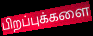
பிறப்புக்களை